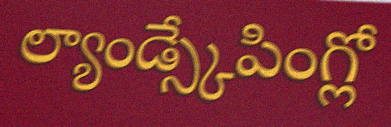
ల్యాండ్స్కేపింగ్లో